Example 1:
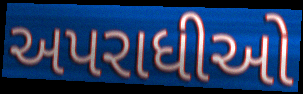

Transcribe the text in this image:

અપરાધીઓ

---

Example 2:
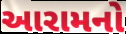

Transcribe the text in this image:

આરામનો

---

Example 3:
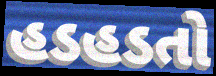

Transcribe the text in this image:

હડહડતો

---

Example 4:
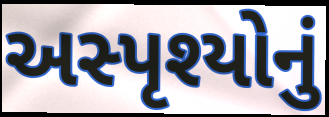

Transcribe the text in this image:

અસ્પૃશ્યોનું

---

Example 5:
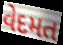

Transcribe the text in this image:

વેદમત